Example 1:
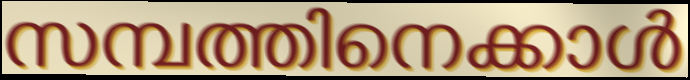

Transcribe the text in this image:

സമ്പത്തിനെക്കാൾ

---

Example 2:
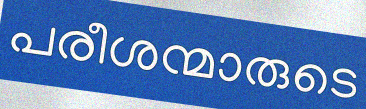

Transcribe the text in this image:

പരീശന്മാരുടെ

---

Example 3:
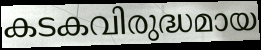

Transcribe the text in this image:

കടകവിരുദ്ധമായ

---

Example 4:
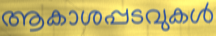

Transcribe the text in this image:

ആകാശപ്പടവുകൾ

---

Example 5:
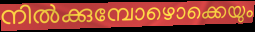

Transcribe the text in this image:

നിൽക്കുമ്പോഴൊക്കെയും